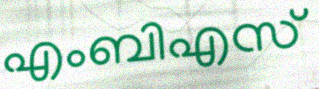
എംബിഎസ്